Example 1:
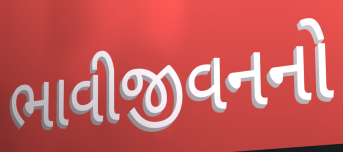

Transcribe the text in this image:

ભાવીજીવનનો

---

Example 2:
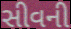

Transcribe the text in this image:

સીવની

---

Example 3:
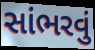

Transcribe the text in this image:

સાંભરવું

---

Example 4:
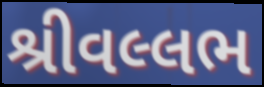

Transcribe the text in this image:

શ્રીવલ્લભ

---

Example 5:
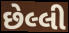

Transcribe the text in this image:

છેલ્લી